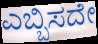
ಎಬ್ಬಿಸದೇ